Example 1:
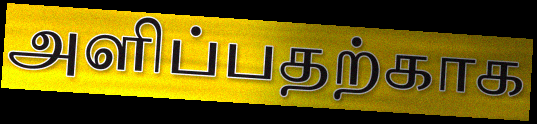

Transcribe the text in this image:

அளிப்பதற்காக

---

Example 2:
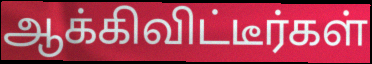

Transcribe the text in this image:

ஆக்கிவிட்டீர்கள்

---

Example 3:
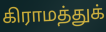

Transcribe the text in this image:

கிராமத்துக்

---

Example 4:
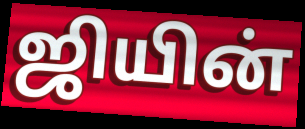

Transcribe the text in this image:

ஜியின்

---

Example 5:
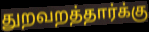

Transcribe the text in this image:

துறவறத்தார்க்கு